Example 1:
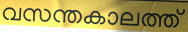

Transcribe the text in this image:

വസന്തകാലത്ത്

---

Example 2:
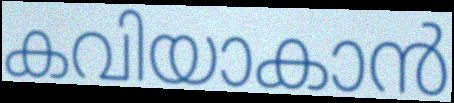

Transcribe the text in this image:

കവിയാകാൻ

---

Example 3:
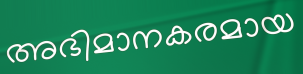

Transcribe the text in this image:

അഭിമാനകരമായ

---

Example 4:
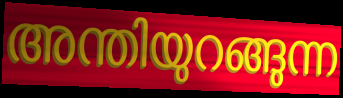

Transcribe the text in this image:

അന്തിയുറങ്ങുന്ന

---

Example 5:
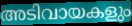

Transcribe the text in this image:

അടിവായകളും